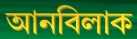
আনবিলাক